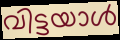
വിട്ടയാൾ